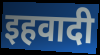
इहवादी